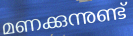
മണക്കുന്നുണ്ട്